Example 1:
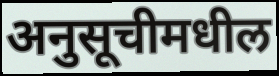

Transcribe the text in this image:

अनुसूचीमधील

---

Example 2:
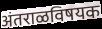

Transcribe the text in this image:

अंतराळविषयक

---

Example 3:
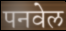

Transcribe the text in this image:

पनवेल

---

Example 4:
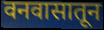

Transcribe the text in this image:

वनवासातून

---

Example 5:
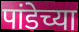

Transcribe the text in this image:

पांडेच्या